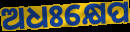
ଅଧଃକ୍ଷେପ